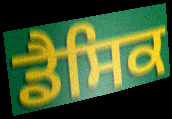
ਡੈਸਿਕ